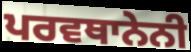
ਪਰਵਥਾਨੇਨੀ